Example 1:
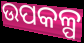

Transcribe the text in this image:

ଉପକଳ୍ପ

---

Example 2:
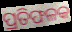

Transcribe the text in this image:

ପ୍ରତିଫଳକ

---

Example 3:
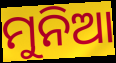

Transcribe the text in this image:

ମୁନିଆ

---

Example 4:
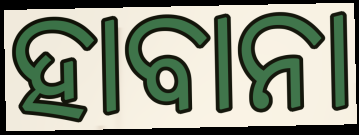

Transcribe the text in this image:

ହାବାନା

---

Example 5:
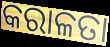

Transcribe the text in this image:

କରାଳତା